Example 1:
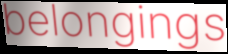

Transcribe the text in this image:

belongings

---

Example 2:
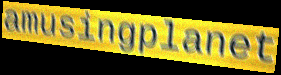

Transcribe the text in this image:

amusingplanet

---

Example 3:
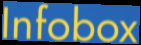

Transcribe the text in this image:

Infobox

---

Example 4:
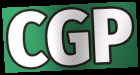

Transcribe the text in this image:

CGP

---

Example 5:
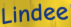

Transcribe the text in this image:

Lindee